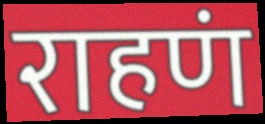
राहणं